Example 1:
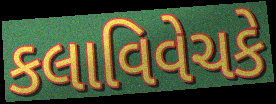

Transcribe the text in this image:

કલાવિવેચકે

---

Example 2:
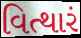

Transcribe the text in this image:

વિત્થારં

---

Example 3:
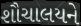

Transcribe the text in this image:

શૌચાલયને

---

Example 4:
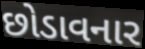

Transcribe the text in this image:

છોડાવનાર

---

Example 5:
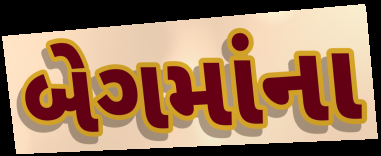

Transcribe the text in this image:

બેગમાંના